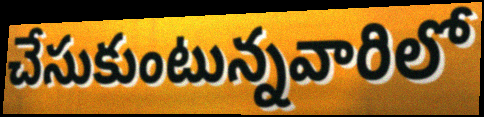
చేసుకుంటున్నవారిలో